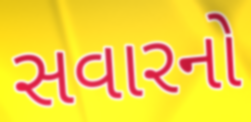
સવારનો